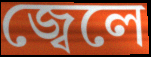
জ্বেলে